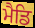
ਮੈਡਿ